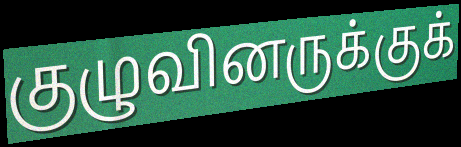
குழுவினருக்குக்